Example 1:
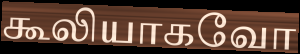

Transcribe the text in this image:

கூலியாகவோ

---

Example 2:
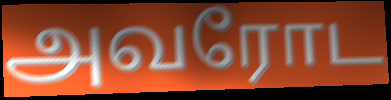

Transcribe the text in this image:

அவரோட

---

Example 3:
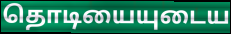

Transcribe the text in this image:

தொடியையுடைய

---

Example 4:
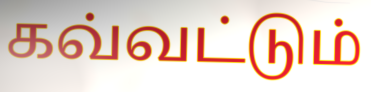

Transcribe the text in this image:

கவ்வட்டும்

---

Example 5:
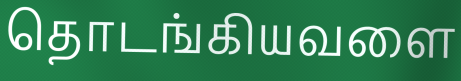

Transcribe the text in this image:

தொடங்கியவளை